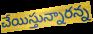
చేయిస్తున్నారన్న